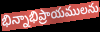
భిన్నాభిప్రాయములను